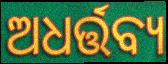
ଅଧର୍ତ୍ତବ୍ୟ